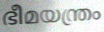
ഭീമയന്ത്രം